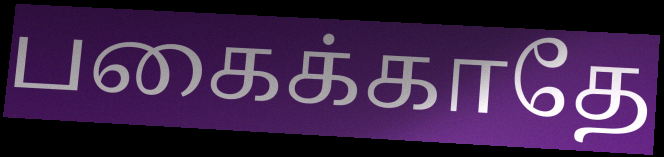
பகைக்காதே